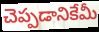
చెప్పడానికేమీ